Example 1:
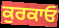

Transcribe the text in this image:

ਕੁਰਕਾਓ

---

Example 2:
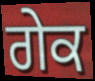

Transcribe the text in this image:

ਗੇਕ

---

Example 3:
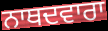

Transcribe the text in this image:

ਨਾਥਦਵਾਰਾ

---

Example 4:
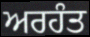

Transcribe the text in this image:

ਅਰਹੰਤ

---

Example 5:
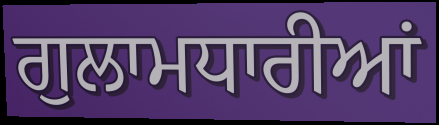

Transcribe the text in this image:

ਗੁਲਾਮਧਾਰੀਆਂ